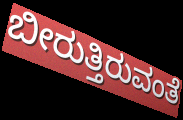
ಬೀರುತ್ತಿರುವಂತೆ